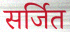
सर्जित